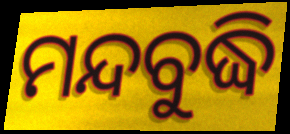
ମନ୍ଦବୁଦ୍ଧି